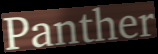
Panther